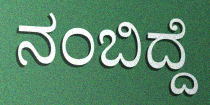
ನಂಬಿದ್ದೆ